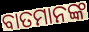
ବାତମାନଙ୍କ